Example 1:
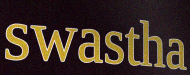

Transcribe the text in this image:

swastha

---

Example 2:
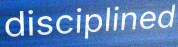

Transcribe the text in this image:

disciplined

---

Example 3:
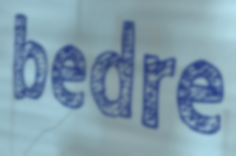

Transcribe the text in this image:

bedre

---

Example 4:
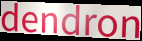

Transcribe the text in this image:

dendron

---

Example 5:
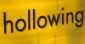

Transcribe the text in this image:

hollowing